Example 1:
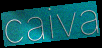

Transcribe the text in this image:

caiva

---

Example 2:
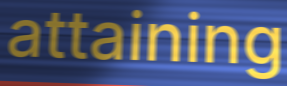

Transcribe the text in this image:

attaining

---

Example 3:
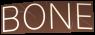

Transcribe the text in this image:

BONE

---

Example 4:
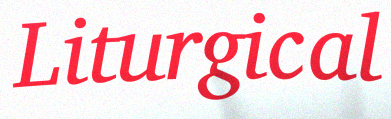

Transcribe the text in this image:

Liturgical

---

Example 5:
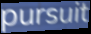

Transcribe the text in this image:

pursuit